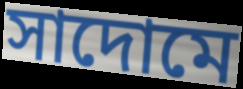
সাদোমে